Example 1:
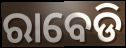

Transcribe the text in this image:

ରାବେଡି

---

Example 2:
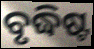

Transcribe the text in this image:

ବୃଦ୍ଧିଷ୍ଟ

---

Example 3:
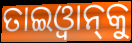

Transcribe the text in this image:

ତାଇଓ୍ବାନ୍‌କୁ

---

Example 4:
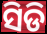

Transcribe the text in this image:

ସିଡି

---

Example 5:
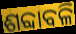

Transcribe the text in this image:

ଶବ୍ଦାବଳି